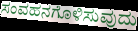
ಸಂವಹನಗೊಳಿಸುವುದು